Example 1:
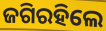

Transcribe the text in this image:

ଜଗିରହିଲେ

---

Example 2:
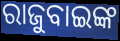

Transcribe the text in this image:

ରାଜୁବାଇଙ୍କ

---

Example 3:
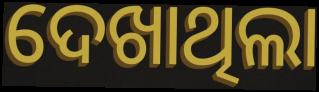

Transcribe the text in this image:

ଦେଖାଥିଲା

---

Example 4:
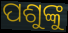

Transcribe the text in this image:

ପଶୁଙ୍କୁ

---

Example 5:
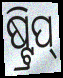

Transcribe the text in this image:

ଷ୍ଟ୍ରିପ୍